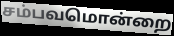
சம்பவமொன்றை